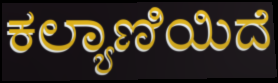
ಕಲ್ಯಾಣಿಯಿದೆ